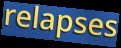
relapses